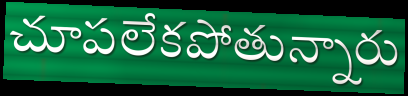
చూపలేకపోతున్నారు